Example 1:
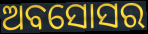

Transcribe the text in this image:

ଅବସୋସର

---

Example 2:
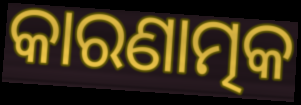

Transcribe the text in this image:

କାରଣାତ୍ମକ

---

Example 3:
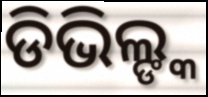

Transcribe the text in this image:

ଡିଭିଲ୍ଙ୍କ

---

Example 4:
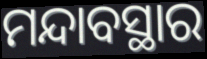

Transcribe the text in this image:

ମନ୍ଦାବସ୍ଥାର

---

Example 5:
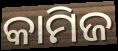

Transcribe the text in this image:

କାମିଜ